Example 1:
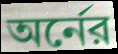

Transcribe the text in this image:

অর্নের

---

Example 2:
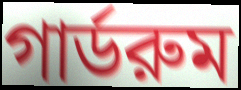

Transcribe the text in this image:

গার্ডরুম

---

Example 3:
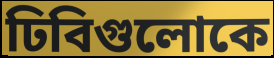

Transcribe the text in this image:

ঢিবিগুলোকে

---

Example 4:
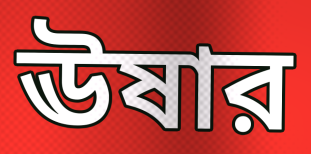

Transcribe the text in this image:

ঊষার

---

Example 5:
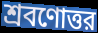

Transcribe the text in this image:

শ্রবণোত্তর